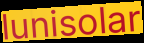
lunisolar